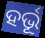
ହର୍ଭୂ